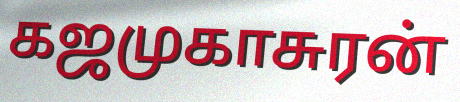
கஜமுகாசுரன்